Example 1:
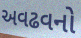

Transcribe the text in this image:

અવઢવનો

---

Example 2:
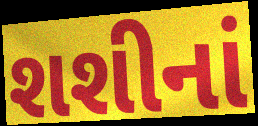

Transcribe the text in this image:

શશીનાં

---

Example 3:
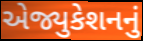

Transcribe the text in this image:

એજ્યુકેશનનું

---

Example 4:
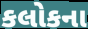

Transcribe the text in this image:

કલોકના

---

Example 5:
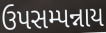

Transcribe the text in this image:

ઉપસમ્પન્નાય